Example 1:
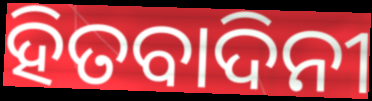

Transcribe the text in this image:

ହିତବାଦିନୀ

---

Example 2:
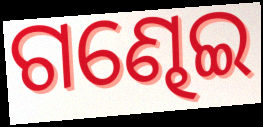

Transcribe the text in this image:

ଗଣ୍ଢେଇ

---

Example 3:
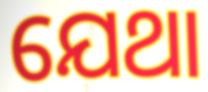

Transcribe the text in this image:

ଯେଥା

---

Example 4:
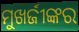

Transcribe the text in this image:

ମୁଖର୍ଜୀଙ୍କର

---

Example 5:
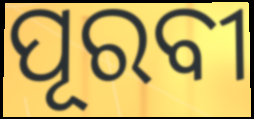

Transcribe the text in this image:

ପୂରବୀ